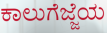
ಕಾಲುಗೆಜ್ಜೆಯ